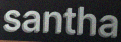
santha